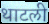
थाटली